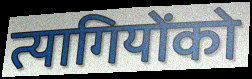
त्यागियोंको